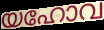
യഹോവ